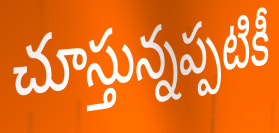
చూస్తున్నప్పటికీ